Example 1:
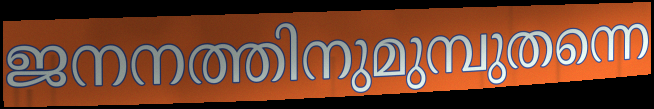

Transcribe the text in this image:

ജനനത്തിനുമുമ്പുതന്നെ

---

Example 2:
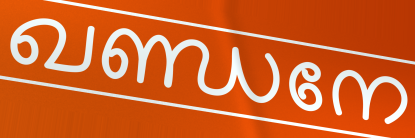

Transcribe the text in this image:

ഖണ്ഡനേ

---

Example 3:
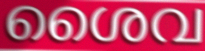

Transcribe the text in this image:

ശൈവ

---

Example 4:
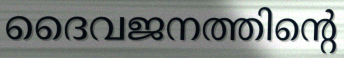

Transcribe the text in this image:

ദൈവജനത്തിന്റെ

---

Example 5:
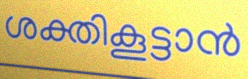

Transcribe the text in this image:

ശക്തികൂട്ടാൻ